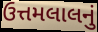
ઉત્તમલાલનું